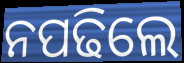
ନପଢିଲେ